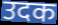
उदक